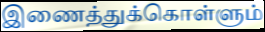
இணைத்துக்கொள்ளும்